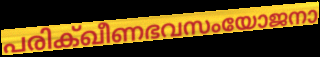
പരിക്ഖീണഭവസംയോജനാ